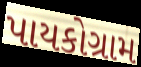
પાયકોગ્રામ